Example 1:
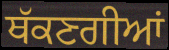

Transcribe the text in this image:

ਥੱਕਣਗੀਆਂ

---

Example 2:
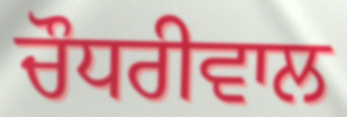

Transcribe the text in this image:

ਚੌਧਰੀਵਾਲ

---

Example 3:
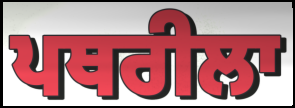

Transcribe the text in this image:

ਪਥਰੀਲਾ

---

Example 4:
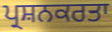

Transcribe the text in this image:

ਪ੍ਰਸ਼ਨਕਰਤਾ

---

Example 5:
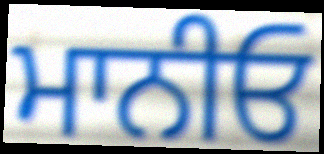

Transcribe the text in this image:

ਮਾਨੀਓ